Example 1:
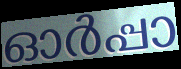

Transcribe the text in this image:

ഓർപ്പാ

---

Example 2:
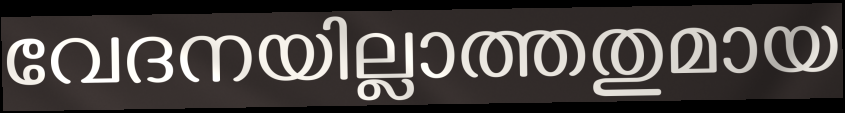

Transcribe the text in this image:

വേദനയില്ലാത്തതുമായ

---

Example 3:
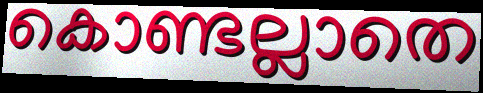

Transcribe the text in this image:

കൊണ്ടല്ലാതെ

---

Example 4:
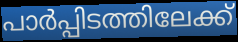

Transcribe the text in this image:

പാർപ്പിടത്തിലേക്ക്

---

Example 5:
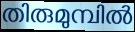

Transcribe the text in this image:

തിരുമുമ്പിൽ